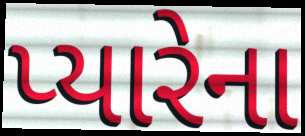
પ્યારેના